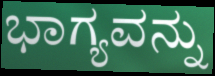
ಭಾಗ್ಯವನ್ನು